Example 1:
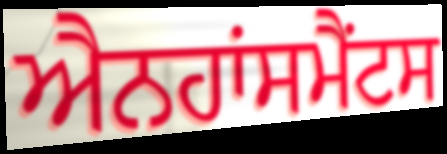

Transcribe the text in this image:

ਐਨਹਾਂਸਮੈਂਟਸ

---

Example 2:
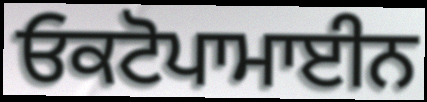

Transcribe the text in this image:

ਓਕਟੋਪਾਮਾਈਨ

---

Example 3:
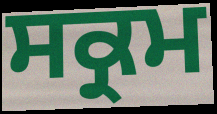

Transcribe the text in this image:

ਸਕ੍ਰਮ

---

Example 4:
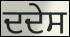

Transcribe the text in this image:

ਦਦੇਸ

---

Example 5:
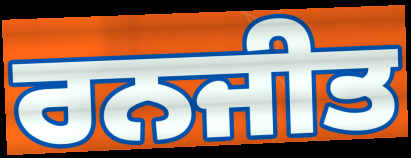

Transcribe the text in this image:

ਰਨਜੀਤ